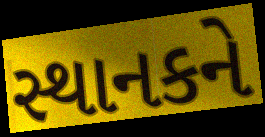
સ્થાનકને